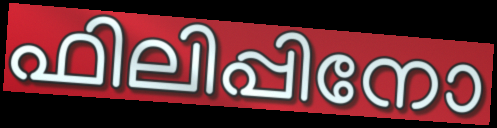
ഫിലിപ്പിനോ